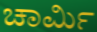
ಚಾರ್ಮಿ